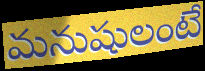
మనుషులంటే